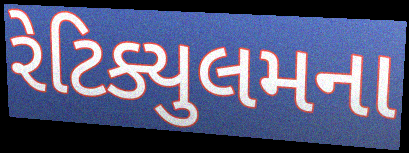
રેટિક્યુલમના